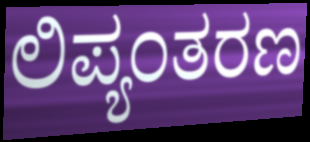
ಲಿಪ್ಯಂತರಣ